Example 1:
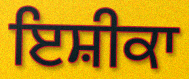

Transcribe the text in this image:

ਇਸ਼ੀਕਾ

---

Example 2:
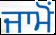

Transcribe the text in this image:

ਜਾਮੋਂ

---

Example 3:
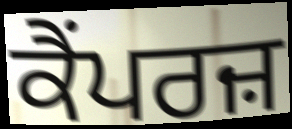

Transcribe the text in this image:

ਕੈਂਪਰਜ਼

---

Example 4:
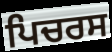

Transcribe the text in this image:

ਪਿਚਰਸ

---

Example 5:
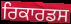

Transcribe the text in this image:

ਰਿਕਾਰਡਸ